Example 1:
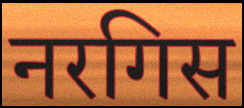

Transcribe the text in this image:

नरगिस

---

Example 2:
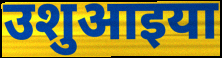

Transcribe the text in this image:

उशुआइया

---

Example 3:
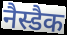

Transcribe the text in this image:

नैस्डैक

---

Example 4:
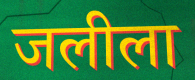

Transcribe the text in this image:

जलीला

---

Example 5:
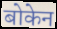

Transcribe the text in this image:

बोकेन